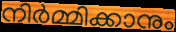
നിർമ്മിക്കാനും